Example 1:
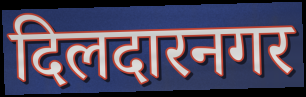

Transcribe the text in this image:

दिलदारनगर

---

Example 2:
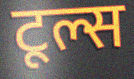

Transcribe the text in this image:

टूल्स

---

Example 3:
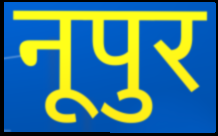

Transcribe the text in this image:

नूपुर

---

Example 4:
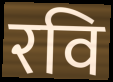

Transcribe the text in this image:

रवि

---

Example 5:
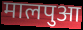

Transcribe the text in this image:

मालपुआ